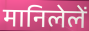
मानिलेलें